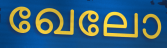
ഖേലോ